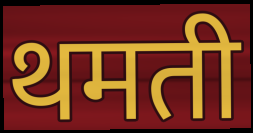
थमती